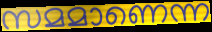
സമമാണെന്ന